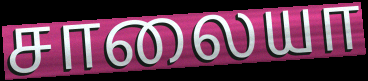
சாலையா